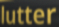
lutter